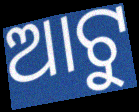
ଆଟୁ